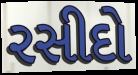
રસીદો